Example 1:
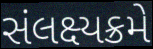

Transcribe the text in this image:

સંલક્ષ્યક્રમે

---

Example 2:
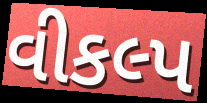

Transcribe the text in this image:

વીકલ્પ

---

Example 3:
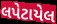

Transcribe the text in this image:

લપેટાયેલ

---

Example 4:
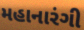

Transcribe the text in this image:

મહાનારંગી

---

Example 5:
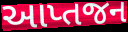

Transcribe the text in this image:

આપ્તજન